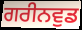
ਗਰੀਨਵੁਡ